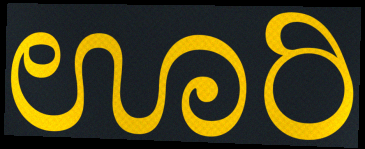
ಊರಿ